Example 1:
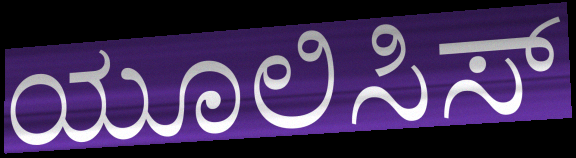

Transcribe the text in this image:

ಯೂಲಿಸಿಸ್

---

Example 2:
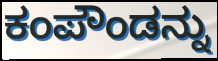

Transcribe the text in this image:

ಕಂಪೌಂಡನ್ನು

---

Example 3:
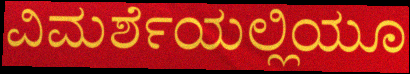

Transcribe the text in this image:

ವಿಮರ್ಶೆಯಲ್ಲಿಯೂ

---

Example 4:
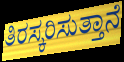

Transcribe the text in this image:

ತಿರಸ್ಕರಿಸುತ್ತಾನೆ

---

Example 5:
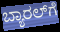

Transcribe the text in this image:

ಬ್ಯಾರಲ್‌ಗೆ